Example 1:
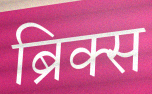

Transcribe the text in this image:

ब्रिक्स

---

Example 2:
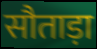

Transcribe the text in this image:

सौताड़ा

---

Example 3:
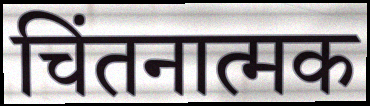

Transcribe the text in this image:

चिंतनात्मक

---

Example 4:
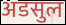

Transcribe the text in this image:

अडसुल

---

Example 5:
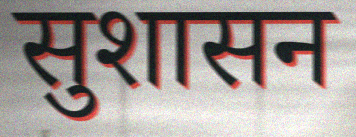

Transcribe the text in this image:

सुशासन